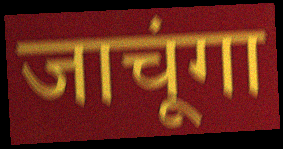
जाचूंगा